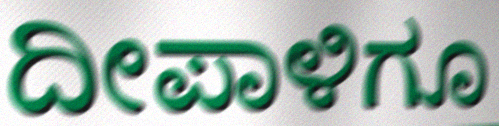
ದೀಪಾಳಿಗೂ